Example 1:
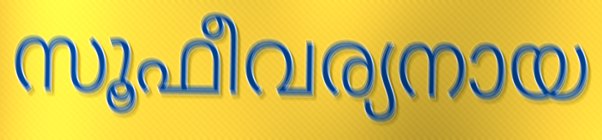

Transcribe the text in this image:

സൂഫീവര്യനായ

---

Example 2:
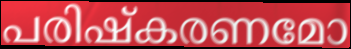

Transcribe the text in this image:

പരിഷ്കരണമോ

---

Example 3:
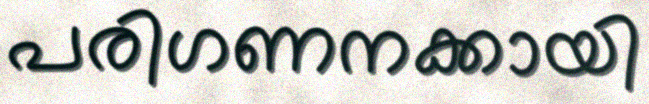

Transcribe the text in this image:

പരിഗണനക്കായി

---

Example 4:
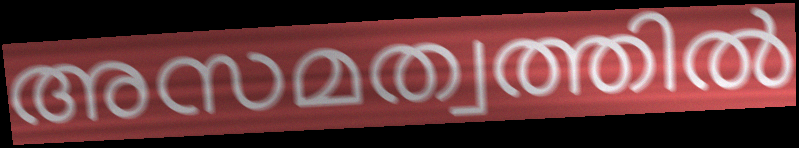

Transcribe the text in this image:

അസമത്വത്തിൽ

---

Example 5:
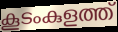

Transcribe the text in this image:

കൂടംകുളത്ത്